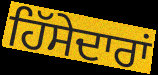
ਹਿੱਸੇਦਾਰਾਂ